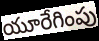
యూరేగింపు